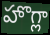
హొగ్లా